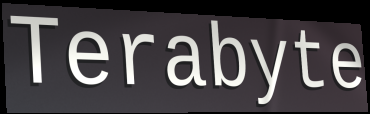
Terabyte